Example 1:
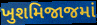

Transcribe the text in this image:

ખુશમિજાજમાં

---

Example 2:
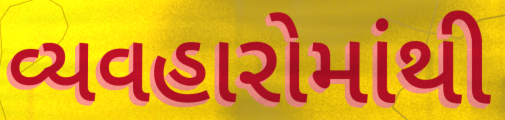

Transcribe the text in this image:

વ્યવહારોમાંથી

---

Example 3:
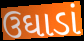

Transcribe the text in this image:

ઉઘાડાં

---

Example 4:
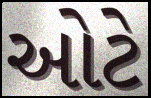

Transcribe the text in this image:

ઓટે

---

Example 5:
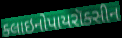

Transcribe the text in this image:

ક્લાઇનોપાયરૉક્સીન